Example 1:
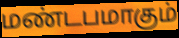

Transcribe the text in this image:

மண்டபமாகும்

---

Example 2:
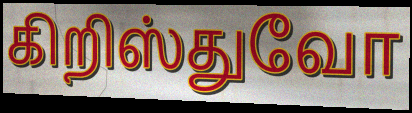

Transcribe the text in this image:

கிறிஸ்துவோ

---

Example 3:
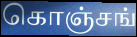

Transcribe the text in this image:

கொஞ்சங்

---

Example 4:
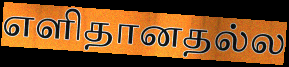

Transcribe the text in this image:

எளிதானதல்ல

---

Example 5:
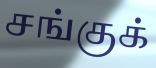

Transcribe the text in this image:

சங்குக்